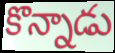
కొన్నాడు